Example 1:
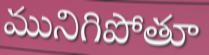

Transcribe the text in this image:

మునిగిపోతూ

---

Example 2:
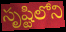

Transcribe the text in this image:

సృష్టిలోని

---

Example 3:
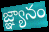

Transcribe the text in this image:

జ్ఞ్యానం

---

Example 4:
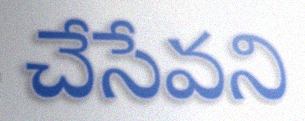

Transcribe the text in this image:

చేసేవని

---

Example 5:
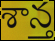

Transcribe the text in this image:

శాన్త